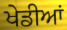
ਖੇਡੀਆਂ